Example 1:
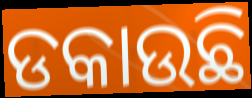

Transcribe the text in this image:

ଡକାଉଛି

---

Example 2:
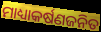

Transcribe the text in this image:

ମାଧ୍ୟାକର୍ଷଣଜନିତ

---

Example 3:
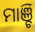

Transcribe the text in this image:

ମାଞ୍ଚି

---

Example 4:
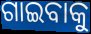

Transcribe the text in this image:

ଗାଇବାକୁ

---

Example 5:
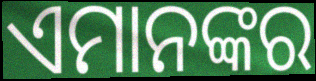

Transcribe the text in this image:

ଏମାନଙ୍କର